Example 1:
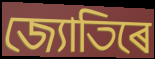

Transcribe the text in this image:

জ্যোতিৰে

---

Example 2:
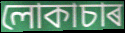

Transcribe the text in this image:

লোকাচাৰ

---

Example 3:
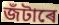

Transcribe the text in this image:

জঁটাৰে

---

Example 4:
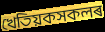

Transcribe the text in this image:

খেতিয়কসকলৰ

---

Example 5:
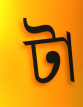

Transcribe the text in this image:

টা